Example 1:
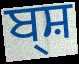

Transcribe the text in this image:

ਬ੍ਸ਼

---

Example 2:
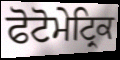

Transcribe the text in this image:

ਫੋਟੋਮੇਟ੍ਰਿਕ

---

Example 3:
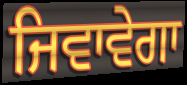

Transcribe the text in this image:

ਜਿਵਾਵੇਗਾ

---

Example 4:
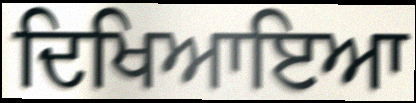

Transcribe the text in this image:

ਦਿਖਿਆਇਆ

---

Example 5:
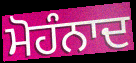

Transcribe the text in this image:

ਮੋਹੰਨਾਦ